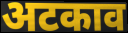
अटकाव